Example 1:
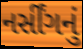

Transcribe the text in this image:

નર્સીંગનું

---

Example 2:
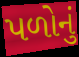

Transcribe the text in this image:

પળોનું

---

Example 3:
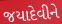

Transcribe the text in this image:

જયાદેવીને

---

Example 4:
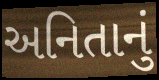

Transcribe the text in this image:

અનિતાનું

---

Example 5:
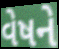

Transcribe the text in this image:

વેષને